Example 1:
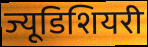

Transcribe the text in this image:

ज्यूडिशियरी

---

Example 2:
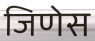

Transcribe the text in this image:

जिणेस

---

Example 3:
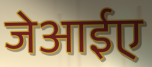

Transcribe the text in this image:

जेआईए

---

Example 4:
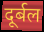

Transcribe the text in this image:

दूर्बल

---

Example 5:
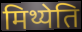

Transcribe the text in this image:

मिथ्येति